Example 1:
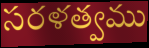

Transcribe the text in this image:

సరళత్వము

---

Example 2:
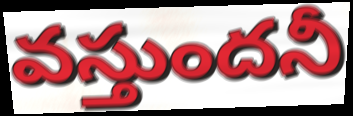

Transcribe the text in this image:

వస్తుందనీ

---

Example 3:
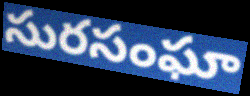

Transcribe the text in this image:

సురసంఘా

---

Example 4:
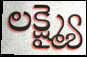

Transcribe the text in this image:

లక్ష్మ్యై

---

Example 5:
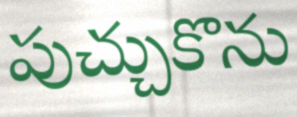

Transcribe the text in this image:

పుచ్చుకొను